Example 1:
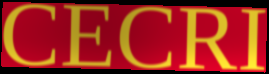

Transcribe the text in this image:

CECRI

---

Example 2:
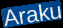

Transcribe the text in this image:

Araku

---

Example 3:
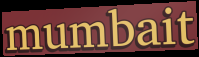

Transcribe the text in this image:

mumbait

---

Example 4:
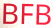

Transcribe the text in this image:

BFB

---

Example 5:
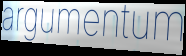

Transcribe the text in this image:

argumentum